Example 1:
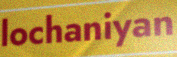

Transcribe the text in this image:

lochaniyan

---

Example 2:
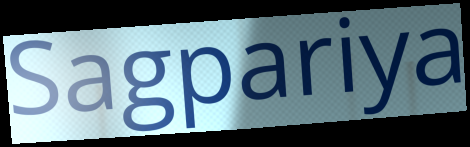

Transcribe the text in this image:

Sagpariya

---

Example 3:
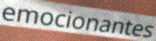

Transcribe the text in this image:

emocionantes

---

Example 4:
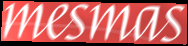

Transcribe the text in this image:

mesmas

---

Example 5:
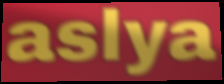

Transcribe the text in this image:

aslya